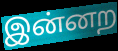
இன்னற